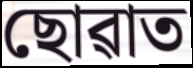
ছোৱাত